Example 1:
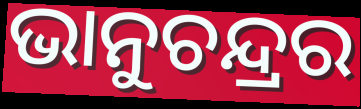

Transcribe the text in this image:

ଭାନୁଚନ୍ଦ୍ରର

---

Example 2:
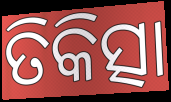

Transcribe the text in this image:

ତିକିତ୍ସା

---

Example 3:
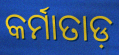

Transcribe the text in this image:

କର୍ମାତାଡ଼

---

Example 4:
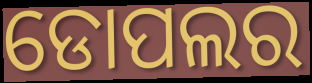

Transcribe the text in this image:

ଡୋପଲର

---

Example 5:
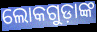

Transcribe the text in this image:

ଲୋକଗୁଡ଼ାଙ୍କ